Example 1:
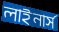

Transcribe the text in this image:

লাইনার্স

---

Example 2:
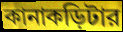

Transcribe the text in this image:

কানাকড়িটার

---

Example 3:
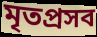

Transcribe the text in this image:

মৃতপ্রসব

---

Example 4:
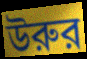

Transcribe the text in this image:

উরুর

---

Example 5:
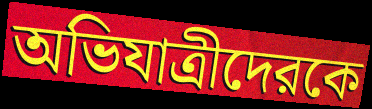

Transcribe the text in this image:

অভিযাত্রীদেরকে